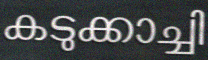
കടുക്കാച്ചി